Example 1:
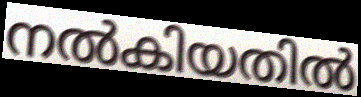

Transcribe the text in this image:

നൽകിയതിൽ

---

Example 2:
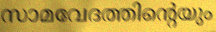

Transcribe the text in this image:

സാമവേദത്തിന്റെയും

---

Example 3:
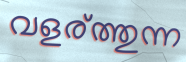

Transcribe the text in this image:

വളര്ത്തുന്ന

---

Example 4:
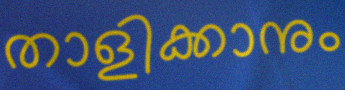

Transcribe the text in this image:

താളിക്കാനും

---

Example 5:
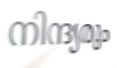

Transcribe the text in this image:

നിന്ദ്യരും